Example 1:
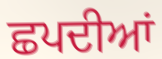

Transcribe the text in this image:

ਛਪਦੀਆਂ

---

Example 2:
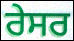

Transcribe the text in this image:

ਰੇਸਰ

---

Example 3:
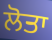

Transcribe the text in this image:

ਲੋਤਾ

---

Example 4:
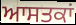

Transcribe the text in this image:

ਆਸਤਕਾਂ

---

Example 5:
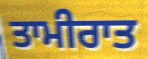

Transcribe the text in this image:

ਤਾਮੀਰਾਤ